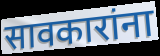
सावकारांना